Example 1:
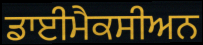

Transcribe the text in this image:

ਡਾਈਮੈਕਸੀਅਨ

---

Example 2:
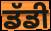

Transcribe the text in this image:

ਡੱਡੀ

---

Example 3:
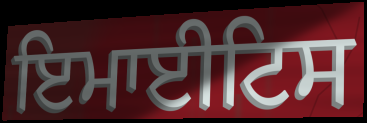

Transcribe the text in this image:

ਇਮਾਈਟਿਸ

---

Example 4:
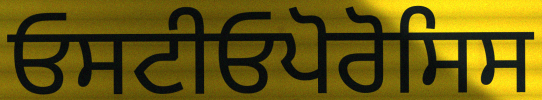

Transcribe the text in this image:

ਓਸਟੀਓਪੋਰੋਸਿਸ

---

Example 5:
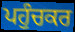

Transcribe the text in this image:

ਪਹੁੰਚਕਰ